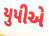
યુપીએ